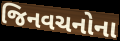
જિનવચનોના